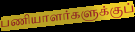
பணியாளர்களுக்குப்